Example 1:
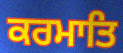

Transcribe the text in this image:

ਕਰਮਾਤਿ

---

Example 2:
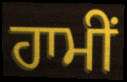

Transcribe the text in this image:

ਹਾਮੀਂ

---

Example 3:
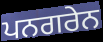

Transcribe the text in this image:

ਪਨਗਰੇਨ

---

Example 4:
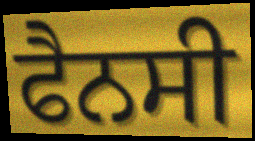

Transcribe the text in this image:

ਫੈਨਸੀ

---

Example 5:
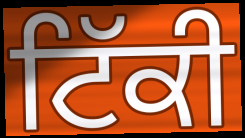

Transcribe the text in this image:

ਟਿੱਕੀ